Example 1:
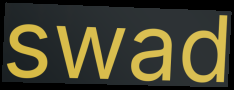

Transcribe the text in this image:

swad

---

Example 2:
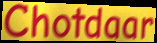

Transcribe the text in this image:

Chotdaar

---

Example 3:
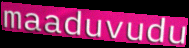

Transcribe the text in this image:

maaduvudu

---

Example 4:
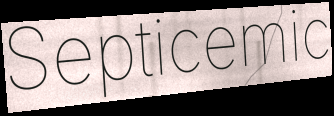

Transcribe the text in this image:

Septicemic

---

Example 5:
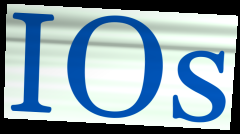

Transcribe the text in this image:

IOs